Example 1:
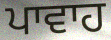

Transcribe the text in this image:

ਪਾਵਾਹ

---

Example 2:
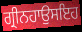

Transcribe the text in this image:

ਗ੍ਰੀਨਹਾਉਸਇਹ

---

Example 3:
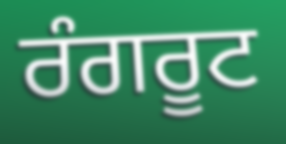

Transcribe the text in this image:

ਰੰਗਰੂਟ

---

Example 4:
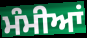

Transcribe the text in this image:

ਮੰਮੀਆਂ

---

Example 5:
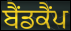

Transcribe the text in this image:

ਬੈਂਡਕੈਂਪ